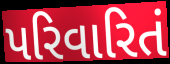
પરિવારિતં